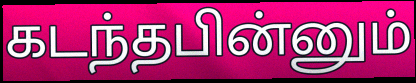
கடந்தபின்னும்